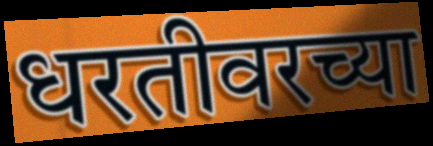
धरतीवरच्या